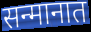
सन्मानात